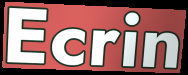
Ecrin